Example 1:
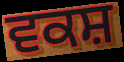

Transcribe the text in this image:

ਵਕਸ਼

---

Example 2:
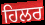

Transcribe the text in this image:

ਹਿਲਰ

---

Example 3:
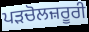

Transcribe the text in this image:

ਪੜਚੋਲਜ਼ਰੂਰੀ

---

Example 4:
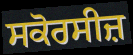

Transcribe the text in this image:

ਸਕੋਰਸੀਜ਼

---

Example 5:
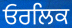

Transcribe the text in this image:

ਓਰਲਿਕ